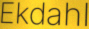
Ekdahl